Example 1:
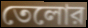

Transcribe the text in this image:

তেলোর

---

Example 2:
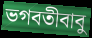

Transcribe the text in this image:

ভগবতীবাবু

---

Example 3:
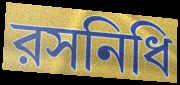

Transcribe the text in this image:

রসনিধি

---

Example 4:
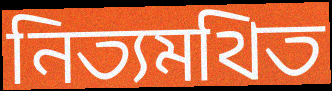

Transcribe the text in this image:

নিত্যমথিত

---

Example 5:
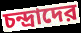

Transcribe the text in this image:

চন্দ্রাদের